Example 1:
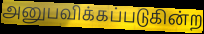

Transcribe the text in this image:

அனுபவிக்கப்படுகின்ற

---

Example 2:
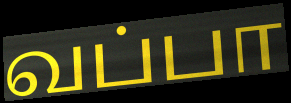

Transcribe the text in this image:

வப்பா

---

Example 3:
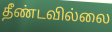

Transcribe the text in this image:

தீண்டவில்லை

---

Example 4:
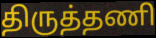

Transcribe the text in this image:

திருத்தணி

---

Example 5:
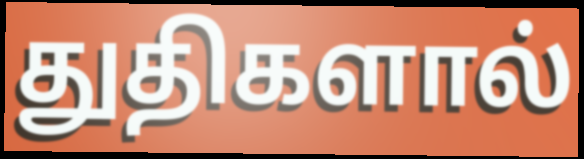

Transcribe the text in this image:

துதிகளால்